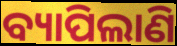
ବ୍ୟାପିଲାଣି